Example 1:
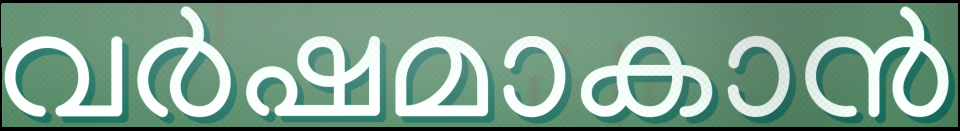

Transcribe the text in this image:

വർഷമാകാൻ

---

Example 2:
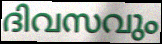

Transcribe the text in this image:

ദിവസവും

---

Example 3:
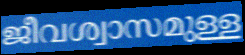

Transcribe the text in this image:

ജീവശ്വാസമുള്ള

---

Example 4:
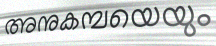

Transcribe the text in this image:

അനുകമ്പയെയും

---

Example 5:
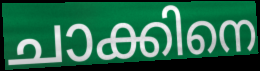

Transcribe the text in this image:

ചാക്കിനെ